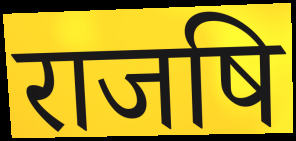
राजषि